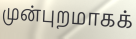
முன்புறமாகக்